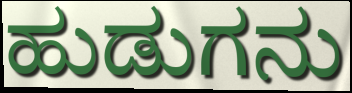
ಹುಡುಗನು